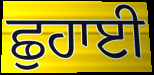
ਛੁਹਾਈ